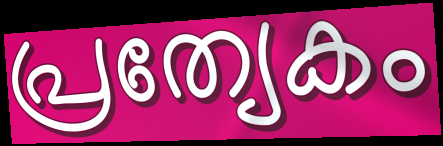
പ്രത്യേകം